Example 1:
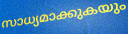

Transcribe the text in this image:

സാധ്യമാക്കുകയും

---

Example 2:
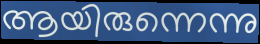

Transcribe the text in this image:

ആയിരുന്നെന്നു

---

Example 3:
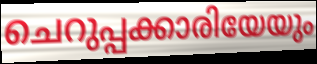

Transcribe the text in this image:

ചെറുപ്പക്കാരിയേയും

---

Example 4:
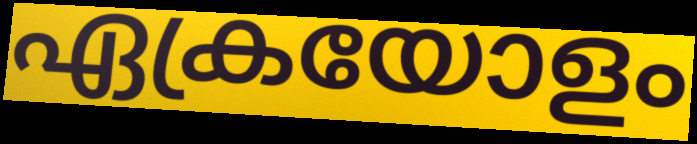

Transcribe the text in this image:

ഏക്രയോളം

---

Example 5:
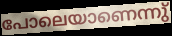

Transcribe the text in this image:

പോലെയാണെന്നു്